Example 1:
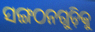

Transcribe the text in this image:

ସଙ୍ଗଠନଗୁଡ଼ିକୁ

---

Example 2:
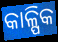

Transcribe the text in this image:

କାଳ୍ପିକ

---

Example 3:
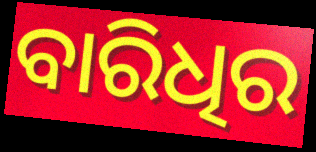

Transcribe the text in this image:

ବାରିଧିର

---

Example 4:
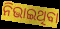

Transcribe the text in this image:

ନିଭାଇଥିବା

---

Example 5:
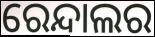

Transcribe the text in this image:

ରେନ୍ଦାଲର